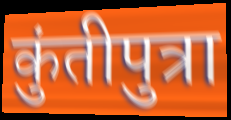
कुंतीपुत्रा